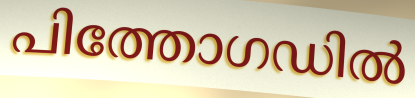
പിത്തോഗഡിൽ